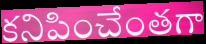
కనిపించేంతగా